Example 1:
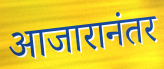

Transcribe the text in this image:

आजारानंतर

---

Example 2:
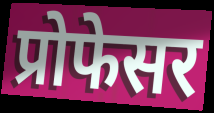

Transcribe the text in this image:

प्रोफेसर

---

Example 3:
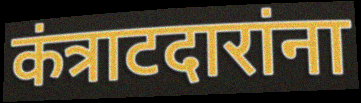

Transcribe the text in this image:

कंत्राटदारांना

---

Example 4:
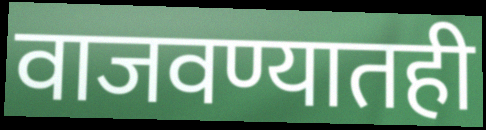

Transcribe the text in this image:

वाजवण्यातही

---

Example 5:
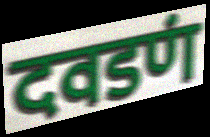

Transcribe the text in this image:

दवडणं